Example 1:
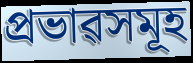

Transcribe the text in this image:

প্ৰভাৱসমূহ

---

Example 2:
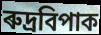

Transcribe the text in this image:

ৰুদ্ৰবিপাক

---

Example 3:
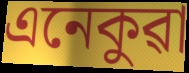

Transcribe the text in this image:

এনেকুৱা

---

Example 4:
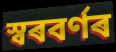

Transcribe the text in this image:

স্বৰবৰ্ণৰ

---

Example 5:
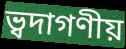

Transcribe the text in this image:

ভ্বদাগণীয়